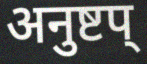
अनुष्टप्